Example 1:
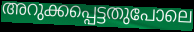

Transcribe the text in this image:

അറുക്കപ്പെട്ടതുപോലെ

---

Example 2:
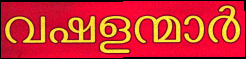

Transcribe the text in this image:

വഷളന്മാർ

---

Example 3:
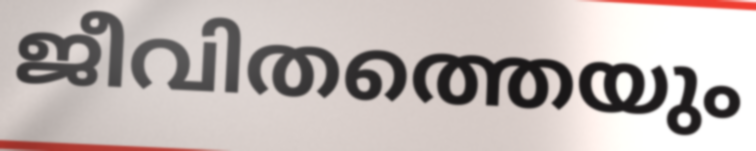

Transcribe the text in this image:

ജീവിതത്തെയും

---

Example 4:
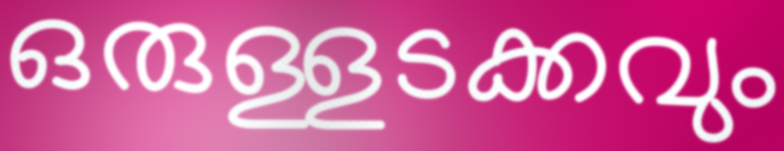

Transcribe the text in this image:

ഒരുള്ളടക്കവും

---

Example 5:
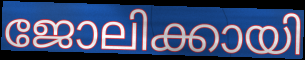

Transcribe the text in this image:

ജോലിക്കായി